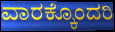
ವಾರಕ್ಕೊಂದರಿ